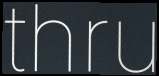
thru